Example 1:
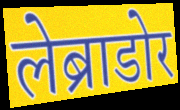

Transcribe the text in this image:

लेब्राडोर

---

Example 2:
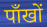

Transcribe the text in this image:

पाँखों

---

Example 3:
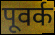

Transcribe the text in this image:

पूवर्क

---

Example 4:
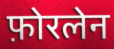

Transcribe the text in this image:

फ़ोरलेन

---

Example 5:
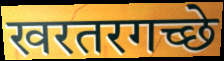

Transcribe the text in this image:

खरतरगच्छे